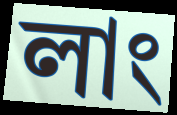
লাং